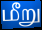
மீறு